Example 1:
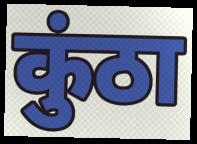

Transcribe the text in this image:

कुंठा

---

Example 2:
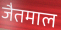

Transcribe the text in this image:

जैतमाल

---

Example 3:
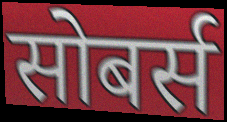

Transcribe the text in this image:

सोबर्स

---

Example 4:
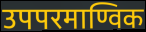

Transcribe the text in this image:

उपपरमाण्विक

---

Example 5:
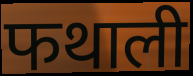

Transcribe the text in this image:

फथाली